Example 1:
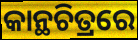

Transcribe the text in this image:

କାନ୍ଥଚିତ୍ରରେ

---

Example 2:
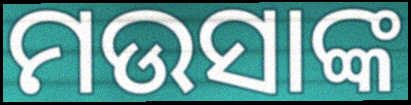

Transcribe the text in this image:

ମଉସାଙ୍କ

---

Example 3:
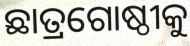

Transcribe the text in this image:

ଛାତ୍ରଗୋଷ୍ଠୀକୁ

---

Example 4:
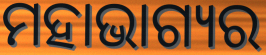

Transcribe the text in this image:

ମହାଭାଗ୍ୟର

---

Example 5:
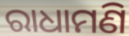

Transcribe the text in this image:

ରାଧାମଣି